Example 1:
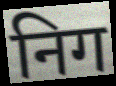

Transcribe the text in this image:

निग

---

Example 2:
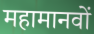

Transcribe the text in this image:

महामानवों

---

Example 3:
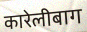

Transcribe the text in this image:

कारेलीबाग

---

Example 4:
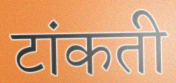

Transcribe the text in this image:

टांकती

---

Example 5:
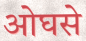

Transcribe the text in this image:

ओघसे